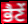
ਭੈਣੇਂ